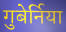
गुबेर्निया